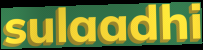
sulaadhi